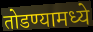
तोडण्यामध्ये